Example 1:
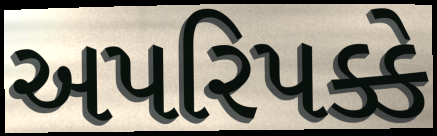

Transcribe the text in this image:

અપરિપક્કે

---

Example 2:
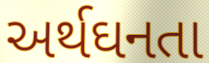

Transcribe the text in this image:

અર્થઘનતા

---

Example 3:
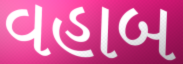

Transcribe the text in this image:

વહાબ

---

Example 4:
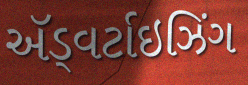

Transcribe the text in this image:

ઍડ્વર્ટાઇઝિંગ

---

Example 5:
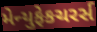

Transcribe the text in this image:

મેન્યુફેકચરર્સ